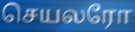
செயலரோ